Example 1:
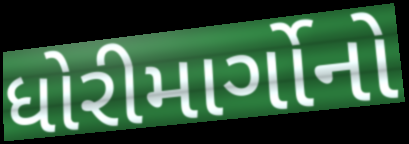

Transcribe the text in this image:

ધોરીમાર્ગોનો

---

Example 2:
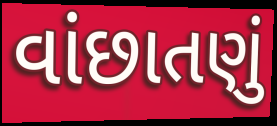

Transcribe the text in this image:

વાંછાતણું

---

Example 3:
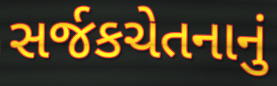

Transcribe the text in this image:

સર્જકચેતનાનું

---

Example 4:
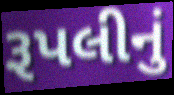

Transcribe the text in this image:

રૂપલીનું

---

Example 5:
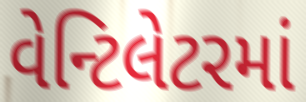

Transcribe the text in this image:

વેન્ટિલેટરમાં